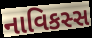
નાવિકસ્સ